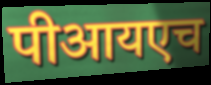
पीआयएच